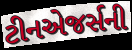
ટીનએજર્સની